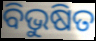
ବିଭୁଷିତ